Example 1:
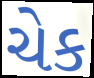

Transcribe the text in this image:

ચેક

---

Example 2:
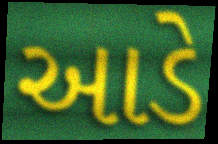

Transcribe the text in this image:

આડે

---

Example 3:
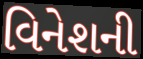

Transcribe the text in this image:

વિનેશની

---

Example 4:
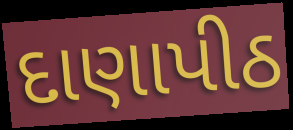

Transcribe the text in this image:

દાણાપીઠ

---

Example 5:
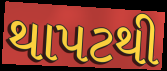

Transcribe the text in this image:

થાપટથી